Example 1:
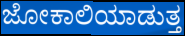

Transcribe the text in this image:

ಜೋಕಾಲಿಯಾಡುತ್ತ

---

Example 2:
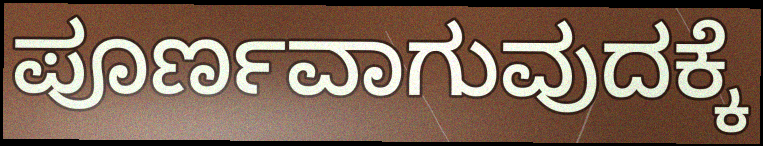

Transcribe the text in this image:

ಪೂರ್ಣವಾಗುವುದಕ್ಕೆ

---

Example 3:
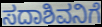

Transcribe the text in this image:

ಸದಾಶಿವನಿಗೆ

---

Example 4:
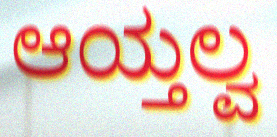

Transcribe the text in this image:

ಆಯ್ತಲ್ವ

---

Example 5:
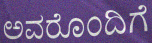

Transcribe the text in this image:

ಅವರೊಂದಿಗೆ